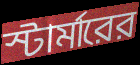
স্টার্মারের